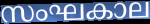
സംഘകാല